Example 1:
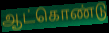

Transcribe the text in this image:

ஆட்கொண்டு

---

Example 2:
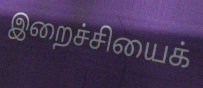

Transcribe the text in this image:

இறைச்சியைக்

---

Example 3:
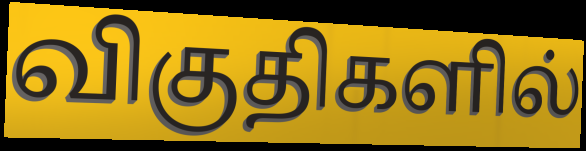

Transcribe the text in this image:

விகுதிகளில்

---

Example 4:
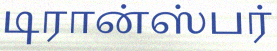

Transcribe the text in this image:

டிரான்ஸ்பர்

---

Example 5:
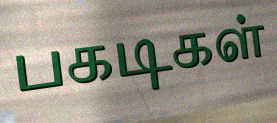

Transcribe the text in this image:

பகடிகள்